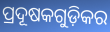
ପ୍ରଦୂଷକଗୁଡ଼ିକର